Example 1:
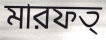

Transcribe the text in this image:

মারফত্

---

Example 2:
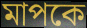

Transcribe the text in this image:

মাপকে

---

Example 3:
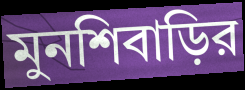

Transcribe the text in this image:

মুনশিবাড়ির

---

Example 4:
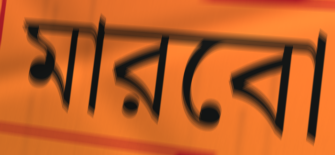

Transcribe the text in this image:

মারবো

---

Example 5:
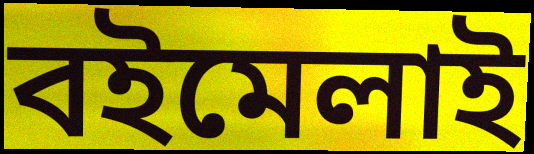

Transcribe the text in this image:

বইমেলাই